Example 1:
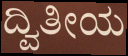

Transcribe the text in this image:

ದ್ವಿತೀಯ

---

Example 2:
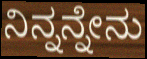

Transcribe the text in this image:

ನಿನ್ನನ್ನೇನು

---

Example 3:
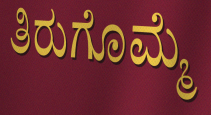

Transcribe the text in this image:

ತಿರುಗೊಮ್ಮೆ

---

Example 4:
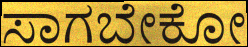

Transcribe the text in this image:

ಸಾಗಬೇಕೋ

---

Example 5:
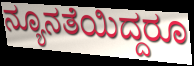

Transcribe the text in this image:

ನ್ಯೂನತೆಯಿದ್ದರೂ